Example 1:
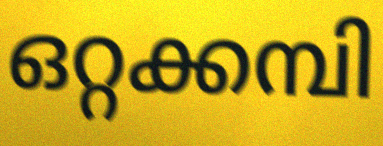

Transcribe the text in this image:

ഒറ്റക്കമ്പി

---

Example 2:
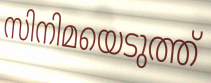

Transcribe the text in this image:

സിനിമയെടുത്ത്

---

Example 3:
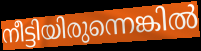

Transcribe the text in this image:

നീട്ടിയിരുന്നെങ്കിൽ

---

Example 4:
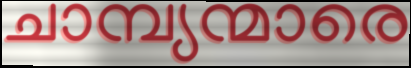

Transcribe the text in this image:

ചാമ്പ്യന്മാരെ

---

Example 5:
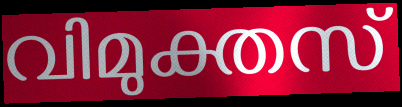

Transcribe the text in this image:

വിമുക്തസ്